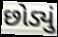
છોડ્યું